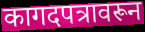
कागदपत्रावरून